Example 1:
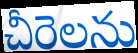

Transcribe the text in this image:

చీరెలను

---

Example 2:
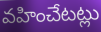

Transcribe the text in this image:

వహించేటట్లు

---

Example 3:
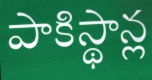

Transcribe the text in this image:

పాకిస్థాన్ల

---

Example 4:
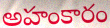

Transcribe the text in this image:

అహంకారం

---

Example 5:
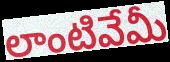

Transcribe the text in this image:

లాంటివేమీ